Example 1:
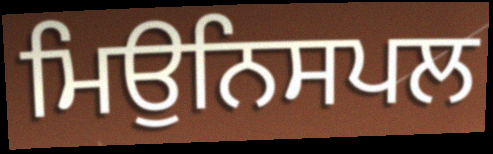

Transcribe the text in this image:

ਮਿਉਨਿਸਪਲ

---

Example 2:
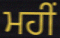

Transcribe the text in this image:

ਮਹੀਂ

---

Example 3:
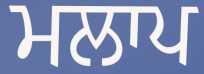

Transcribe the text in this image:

ਮਲਾਪ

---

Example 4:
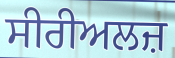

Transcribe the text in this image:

ਸੀਰੀਅਲਜ਼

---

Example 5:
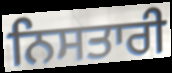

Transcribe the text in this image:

ਨਿਸਤਾਰੀ